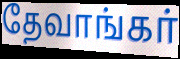
தேவாங்கர்